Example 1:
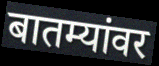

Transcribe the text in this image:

बातम्यांवर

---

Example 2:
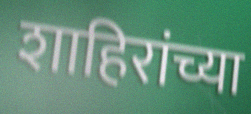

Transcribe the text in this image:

शाहिरांच्या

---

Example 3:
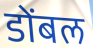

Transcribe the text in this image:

डोंबल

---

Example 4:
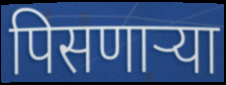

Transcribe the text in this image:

पिसणाऱ्या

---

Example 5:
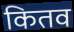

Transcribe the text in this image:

कितव